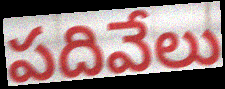
పదివేలు